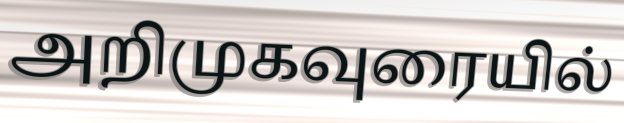
அறிமுகவுரையில்